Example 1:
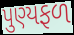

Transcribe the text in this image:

પુણ્યફળ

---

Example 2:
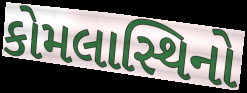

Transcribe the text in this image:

કોમલાસ્થિનો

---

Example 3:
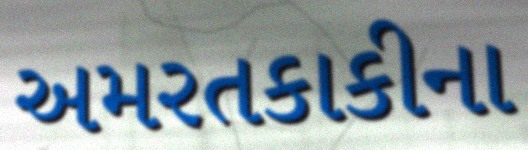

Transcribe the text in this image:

અમરતકાકીના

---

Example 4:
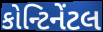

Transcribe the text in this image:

કોન્ટિનેંટલ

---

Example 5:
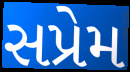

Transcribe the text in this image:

સપ્રેમ